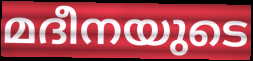
മദീനയുടെ